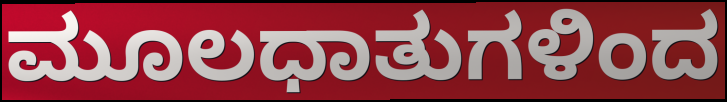
ಮೂಲಧಾತುಗಳಿಂದ